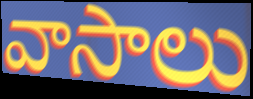
వాసాలు